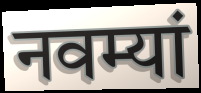
नवम्यां